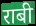
राबी